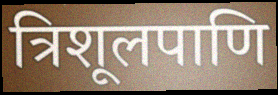
त्रिशूलपाणि